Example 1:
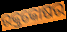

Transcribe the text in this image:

ରକ୍ତକୋଷର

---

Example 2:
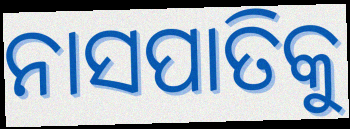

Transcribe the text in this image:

ନାସପାତିକୁ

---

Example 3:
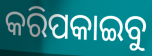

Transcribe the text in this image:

କରିପକାଇବୁ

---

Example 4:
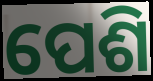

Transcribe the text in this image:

ପେଶି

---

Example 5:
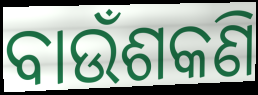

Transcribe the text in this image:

ବାଉଁଶକଣି